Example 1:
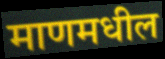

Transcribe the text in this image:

माणमधील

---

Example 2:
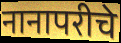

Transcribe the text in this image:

नानापरीचे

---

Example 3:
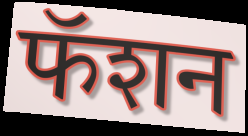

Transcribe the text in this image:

फॅशन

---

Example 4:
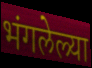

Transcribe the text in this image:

भंगलेल्या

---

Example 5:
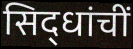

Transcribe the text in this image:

सिद्धांचीं